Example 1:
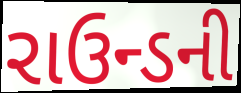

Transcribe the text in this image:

રાઉન્ડની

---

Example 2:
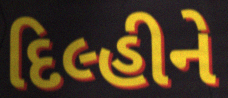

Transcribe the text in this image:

દિલ્હીને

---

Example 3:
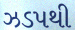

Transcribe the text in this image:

ઝડપથી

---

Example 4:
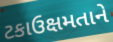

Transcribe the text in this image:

ટકાઉક્ષમતાને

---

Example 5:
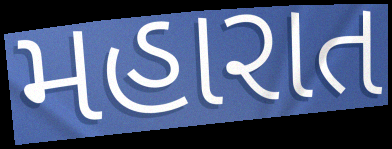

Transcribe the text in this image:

મહારાત